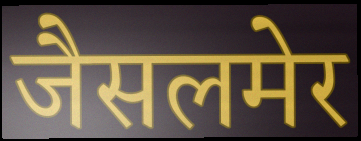
जैसलमेर